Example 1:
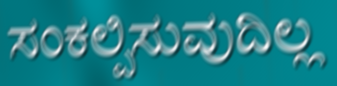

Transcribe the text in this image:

ಸಂಕಲ್ಪಿಸುವುದಿಲ್ಲ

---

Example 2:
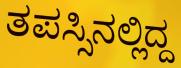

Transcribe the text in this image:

ತಪಸ್ಸಿನಲ್ಲಿದ್ದ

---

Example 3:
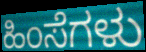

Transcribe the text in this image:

ಹಿಂಸೆಗಳು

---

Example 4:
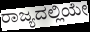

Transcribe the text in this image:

ರಾಜ್ಯದಲ್ಲಿಯೇ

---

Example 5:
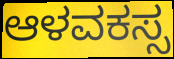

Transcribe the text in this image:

ಆಳವಕಸ್ಸ